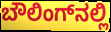
ಬೌಲಿಂಗ್‌ನಲ್ಲಿ